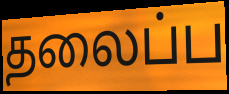
தலைப்ப